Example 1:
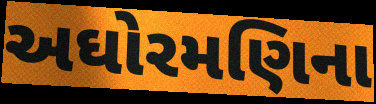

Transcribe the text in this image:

અઘોરમણિના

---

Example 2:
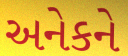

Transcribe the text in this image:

અનેકને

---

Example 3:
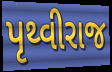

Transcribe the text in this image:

પૃથ્વીરાજ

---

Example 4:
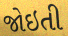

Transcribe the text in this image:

જોઇતી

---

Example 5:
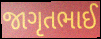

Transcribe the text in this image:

જાગૃતભાઈ